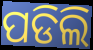
ପଡିଲି